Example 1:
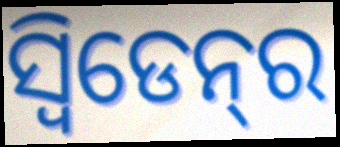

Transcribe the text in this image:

ସ୍ୱିଡେନ୍‍ର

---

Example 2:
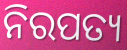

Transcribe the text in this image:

ନିରପତ୍ୟ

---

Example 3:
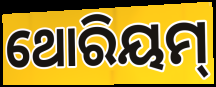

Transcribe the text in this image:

ଥୋରିୟମ୍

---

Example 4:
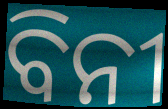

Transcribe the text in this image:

ବିନୀ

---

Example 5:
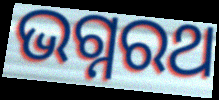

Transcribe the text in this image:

ଭଗ୍ନରଥ